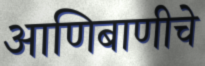
आणिबाणीचे